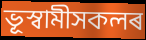
ভূস্বামীসকলৰ